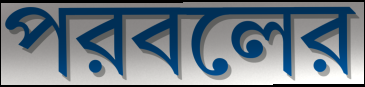
পরবলের